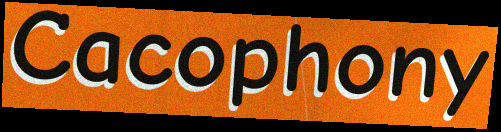
Cacophony